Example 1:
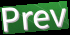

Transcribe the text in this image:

Prev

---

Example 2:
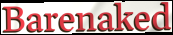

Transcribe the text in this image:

Barenaked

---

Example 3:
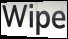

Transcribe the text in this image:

Wipe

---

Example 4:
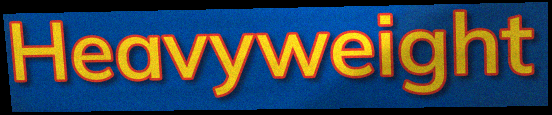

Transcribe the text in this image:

Heavyweight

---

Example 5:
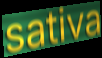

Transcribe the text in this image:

sativa